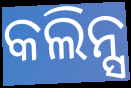
କଲିନ୍ସ